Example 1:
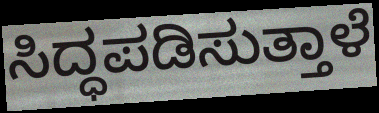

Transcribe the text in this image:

ಸಿದ್ಧಪಡಿಸುತ್ತಾಳೆ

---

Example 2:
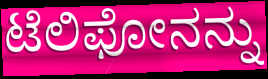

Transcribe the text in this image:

ಟೆಲಿಫೋನನ್ನು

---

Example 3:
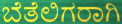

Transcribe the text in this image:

ಬೆತೆಲಿಗರಾಗಿ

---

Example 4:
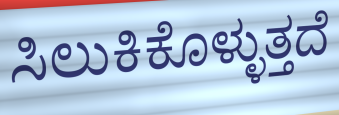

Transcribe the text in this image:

ಸಿಲುಕಿಕೊಳ್ಳುತ್ತದೆ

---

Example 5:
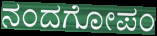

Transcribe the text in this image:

ನಂದಗೋಪಂ